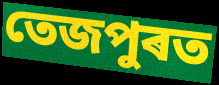
তেজপুৰত